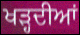
ਖੜ੍ਹਦੀਆਂ